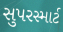
સુપરસ્માર્ટ